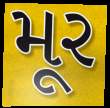
મૂર